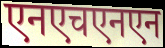
एनएचएनएन